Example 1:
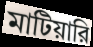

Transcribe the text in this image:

মাটিয়ারি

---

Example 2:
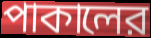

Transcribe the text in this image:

পাকালের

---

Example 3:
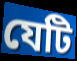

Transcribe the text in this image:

যেটি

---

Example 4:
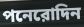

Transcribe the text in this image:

পনেরোদিন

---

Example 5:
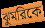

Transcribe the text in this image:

ঝুমরিকে